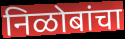
निळोबांचा